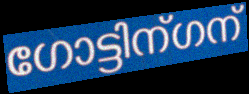
ഗോട്ടിന്ഗന്